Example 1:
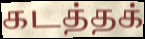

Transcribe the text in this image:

கடத்தக்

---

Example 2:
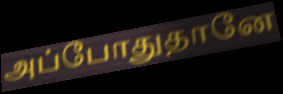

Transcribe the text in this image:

அப்போதுதானே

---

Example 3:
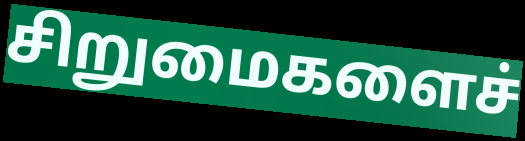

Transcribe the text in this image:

சிறுமைகளைச்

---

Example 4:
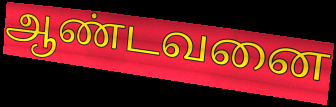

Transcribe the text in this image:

ஆண்டவனை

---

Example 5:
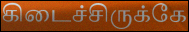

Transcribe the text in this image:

கிடைச்சிருக்கே